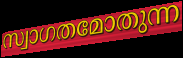
സ്വാഗതമോതുന്ന